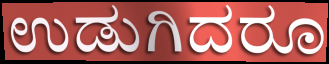
ಉಡುಗಿದರೂ